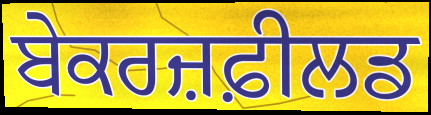
ਬੇਕਰਜ਼ਫ਼ੀਲਡ